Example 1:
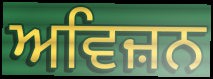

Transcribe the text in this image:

ਅਵਿਜ਼ਨ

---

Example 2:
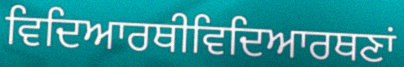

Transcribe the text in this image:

ਵਿਦਿਆਰਥੀਵਿਦਿਆਰਥਣਾਂ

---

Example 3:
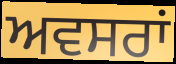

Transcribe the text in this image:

ਅਵਸਰਾਂ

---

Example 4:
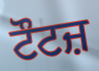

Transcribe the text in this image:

ਟੌਟਜ਼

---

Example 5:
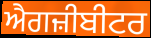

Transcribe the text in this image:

ਐਗਜ਼ੀਬੀਟਰ